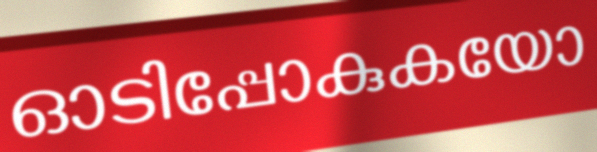
ഓടിപ്പോകുകയോ